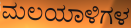
ಮಲಯಾಳಿಗಳ